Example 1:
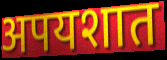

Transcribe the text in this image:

अपयशात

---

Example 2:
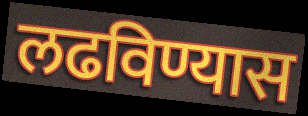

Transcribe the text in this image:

लढविण्यास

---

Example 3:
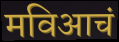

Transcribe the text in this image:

मविआचं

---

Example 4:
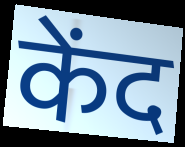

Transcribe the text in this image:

केंद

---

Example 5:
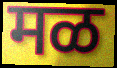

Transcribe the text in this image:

मळ